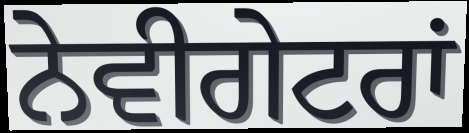
ਨੇਵੀਗੇਟਰਾਂ